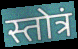
स्तोत्रं